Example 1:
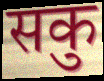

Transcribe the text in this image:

सकु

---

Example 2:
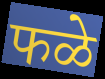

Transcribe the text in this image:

फळे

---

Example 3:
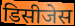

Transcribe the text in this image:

डिसीजेस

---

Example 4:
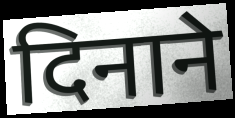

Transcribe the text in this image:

दिनाने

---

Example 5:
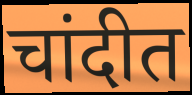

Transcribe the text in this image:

चांदीत